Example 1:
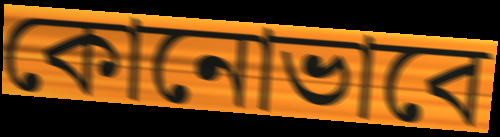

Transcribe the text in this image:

কোনোভাবে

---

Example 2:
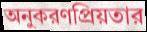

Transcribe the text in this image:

অনুকরণপ্রিয়তার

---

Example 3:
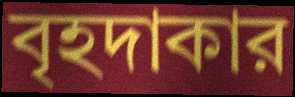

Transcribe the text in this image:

বৃহদাকার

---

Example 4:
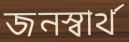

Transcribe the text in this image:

জনস্বার্থ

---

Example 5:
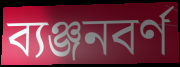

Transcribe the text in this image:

ব্যঞ্জনবর্ণ